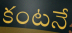
కంటనే